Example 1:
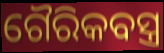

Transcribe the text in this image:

ଗୈରିକବସ୍ତ୍ର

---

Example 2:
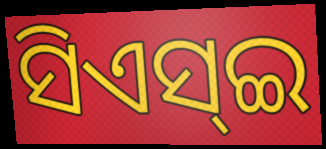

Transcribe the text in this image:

ସିଏସ୍ଇ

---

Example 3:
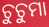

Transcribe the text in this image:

ଚୁଚୁମା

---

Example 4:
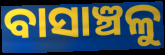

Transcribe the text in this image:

ବାସାଞ୍ଚଳୁ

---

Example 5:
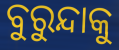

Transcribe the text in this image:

ବୁରୁନ୍ଦାକୁ